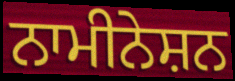
ਨਾਮੀਨੇਸ਼ਨ